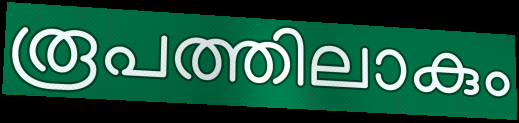
രൂപത്തിലാകും